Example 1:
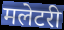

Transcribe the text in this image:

मलेटरी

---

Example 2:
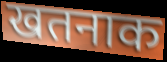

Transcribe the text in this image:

खतनाक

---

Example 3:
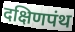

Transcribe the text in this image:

दक्षिणपंथ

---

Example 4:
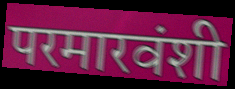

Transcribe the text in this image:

परमारवंशी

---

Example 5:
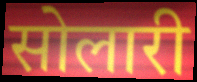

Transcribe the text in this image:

सोलारी